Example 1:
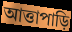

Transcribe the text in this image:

আত্তাপাড়ি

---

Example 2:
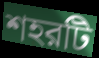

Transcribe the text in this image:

শহরটি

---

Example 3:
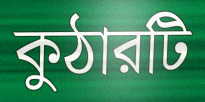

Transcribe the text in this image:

কুঠারটি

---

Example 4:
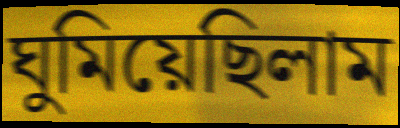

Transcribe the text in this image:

ঘুমিয়েছিলাম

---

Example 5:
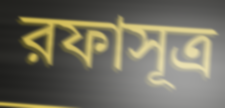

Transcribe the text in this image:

রফাসূত্র